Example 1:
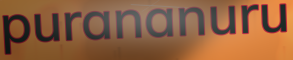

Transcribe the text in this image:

purananuru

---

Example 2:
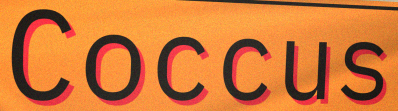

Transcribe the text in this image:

Coccus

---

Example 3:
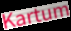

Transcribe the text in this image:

Kartum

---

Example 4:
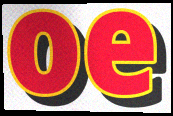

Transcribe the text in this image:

oe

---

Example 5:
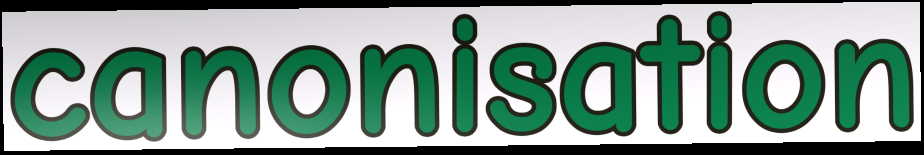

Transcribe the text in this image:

canonisation